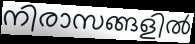
നിരാസങ്ങളിൽ